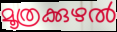
മൂത്രക്കുഴൽ